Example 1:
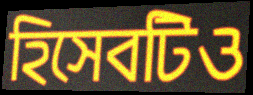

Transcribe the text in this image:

হিসেবটিও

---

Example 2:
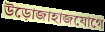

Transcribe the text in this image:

উড়োজাহাজযোগে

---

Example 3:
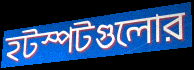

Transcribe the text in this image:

হটস্পটগুলোর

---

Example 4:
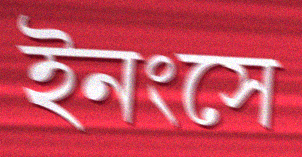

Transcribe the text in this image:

ইনংসে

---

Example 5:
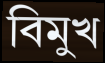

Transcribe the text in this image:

বিমুখ